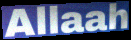
Allaah